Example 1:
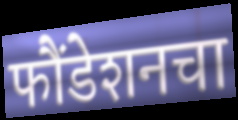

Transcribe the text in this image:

फौंडेशनचा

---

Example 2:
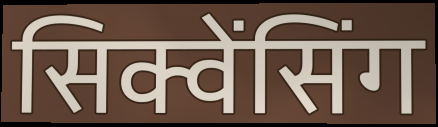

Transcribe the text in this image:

सिक्वेंसिंग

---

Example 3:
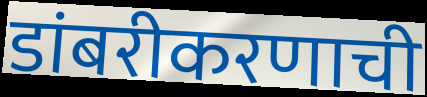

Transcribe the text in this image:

डांबरीकरणाची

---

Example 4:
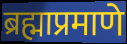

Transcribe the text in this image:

ब्रह्माप्रमाणे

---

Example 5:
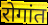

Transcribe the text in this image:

रोगांत